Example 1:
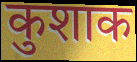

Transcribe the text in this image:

कुशाक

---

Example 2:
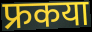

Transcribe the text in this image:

फ्रकया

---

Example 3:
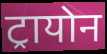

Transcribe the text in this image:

ट्रायोन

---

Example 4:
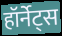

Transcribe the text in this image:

हॉर्नेट्स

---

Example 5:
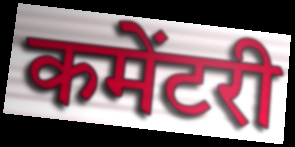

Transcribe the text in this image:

कमेंटरी